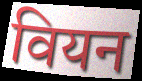
वियन